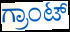
ಗ್ರಾಂಟ್